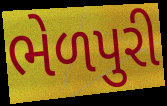
ભેળપુરી